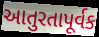
આતુરતાપૂર્વક